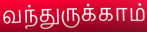
வந்துருக்காம்